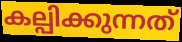
കല്പിക്കുന്നത്